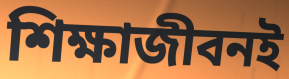
শিক্ষাজীবনই